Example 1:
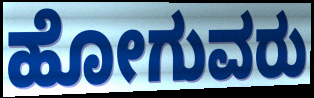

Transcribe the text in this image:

ಹೋಗುವರು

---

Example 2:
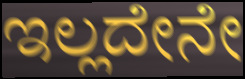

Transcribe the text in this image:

ಇಲ್ಲದೇನೇ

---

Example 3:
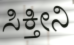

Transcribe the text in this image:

ಸಿಕ್ತೀನಿ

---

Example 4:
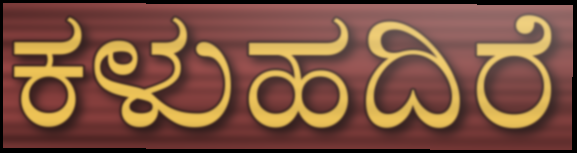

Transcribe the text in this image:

ಕಳುಹದಿರೆ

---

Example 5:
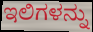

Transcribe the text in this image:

ಇಲಿಗಳನ್ನು